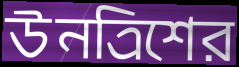
উনত্রিশের